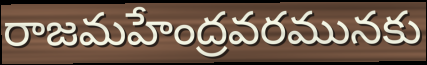
రాజమహేంద్రవరమునకు